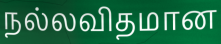
நல்லவிதமான